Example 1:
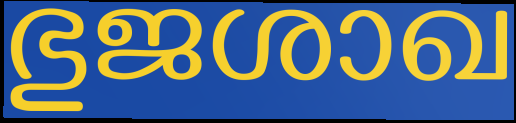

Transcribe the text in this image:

ഭുജശാഖ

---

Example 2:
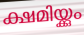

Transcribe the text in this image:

ക്ഷമിയ്ക്കും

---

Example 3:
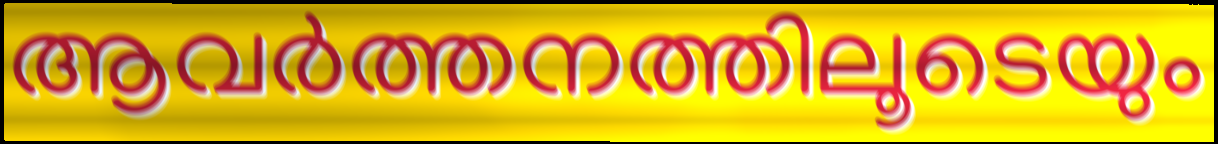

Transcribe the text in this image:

ആവർത്തനത്തിലൂടെയും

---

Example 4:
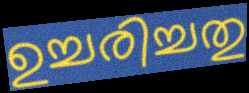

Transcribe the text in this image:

ഉച്ചരിച്ചതു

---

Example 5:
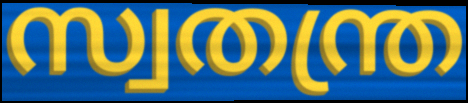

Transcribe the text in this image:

സ്വതന്ത്ര